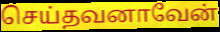
செய்தவனாவேன்